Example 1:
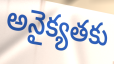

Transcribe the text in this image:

అనైక్యతకు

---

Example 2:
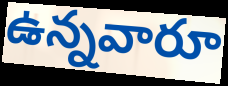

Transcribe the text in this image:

ఉన్నవారూ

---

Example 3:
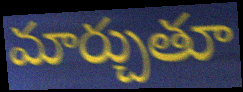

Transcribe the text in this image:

మార్చుతూ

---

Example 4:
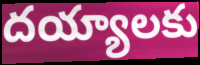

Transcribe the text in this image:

దయ్యాలకు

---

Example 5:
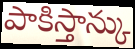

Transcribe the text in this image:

పాకిస్తాన్కు